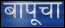
बापूचा